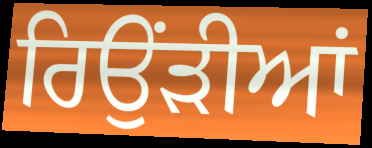
ਰਿਉਂੜੀਆਂ